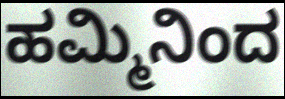
ಹಮ್ಮಿನಿಂದ